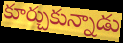
కూర్చుకున్నాడు